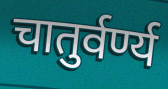
चातुर्वर्ण्य